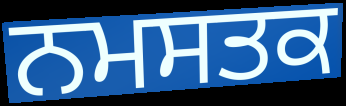
ਨਮਸਤਕ